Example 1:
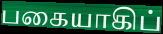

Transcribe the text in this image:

பகையாகிப்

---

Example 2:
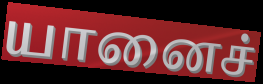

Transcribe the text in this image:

யானைச்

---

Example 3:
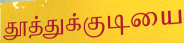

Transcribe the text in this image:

தூத்துக்குடியை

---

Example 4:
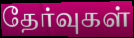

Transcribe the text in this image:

தேர்வுகள்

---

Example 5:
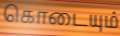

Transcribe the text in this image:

கொடையும்